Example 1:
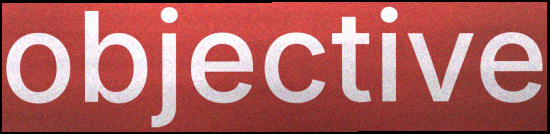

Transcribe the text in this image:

objective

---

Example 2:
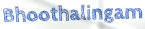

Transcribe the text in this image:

Bhoothalingam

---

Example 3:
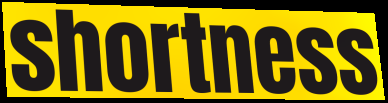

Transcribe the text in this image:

shortness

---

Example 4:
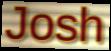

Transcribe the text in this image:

Josh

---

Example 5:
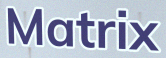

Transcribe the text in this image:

Matrix